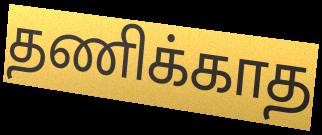
தணிக்காத